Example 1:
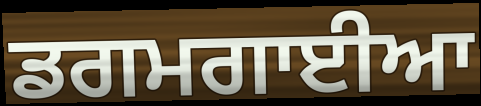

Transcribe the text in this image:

ਡਗਮਗਾਈਆ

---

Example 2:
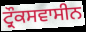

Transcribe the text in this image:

ਟ੍ਰੌਕਸਵਾਸੀਨ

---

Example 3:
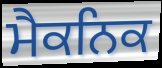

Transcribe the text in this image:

ਮੈਕਨਿਕ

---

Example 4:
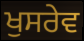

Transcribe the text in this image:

ਖੁਸਰੇਵ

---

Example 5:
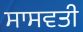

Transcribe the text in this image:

ਸਾਸਵਤੀ